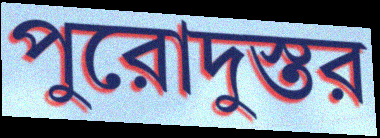
পুরোদুস্তর